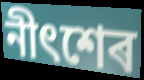
নীৎশেৰ